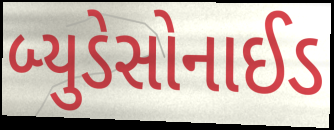
બ્યુડેસોનાઈડ